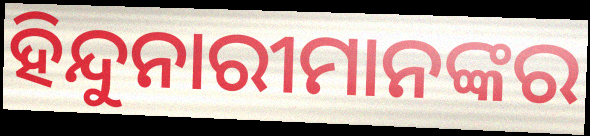
ହିନ୍ଦୁନାରୀମାନଙ୍କର